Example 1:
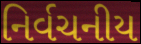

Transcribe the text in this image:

નિર્વચનીય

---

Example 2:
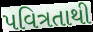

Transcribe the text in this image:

પવિત્રતાથી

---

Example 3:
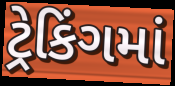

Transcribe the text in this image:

ટ્રેકિંગમાં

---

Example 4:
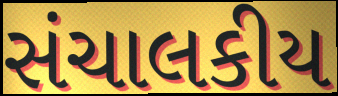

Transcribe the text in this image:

સંચાલકીય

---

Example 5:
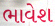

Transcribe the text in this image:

ભાવેશ